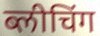
ब्लीचिंग